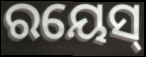
ରୟେସ୍